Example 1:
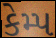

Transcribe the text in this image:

કેમ્પ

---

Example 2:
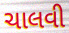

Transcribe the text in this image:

ચાલવી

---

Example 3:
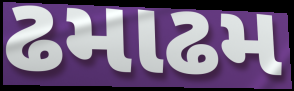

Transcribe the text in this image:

ઢમાઢમ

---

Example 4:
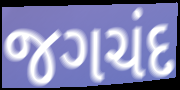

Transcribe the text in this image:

જગચંદ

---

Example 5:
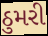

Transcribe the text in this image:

ઠુમરી